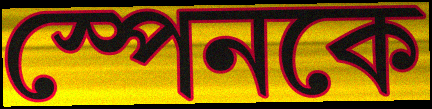
স্পেনকে